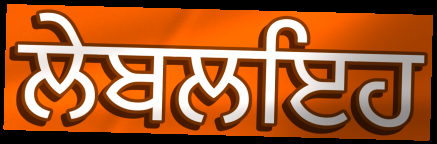
ਲੇਬਲਇਹ